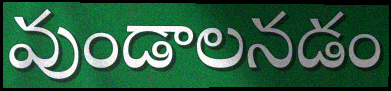
వుండాలనడం